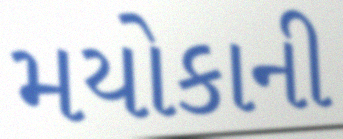
મયોકાની